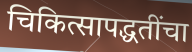
चिकित्सापद्धतींचा